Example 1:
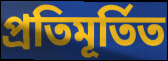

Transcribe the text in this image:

প্ৰতিমূৰ্তিত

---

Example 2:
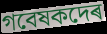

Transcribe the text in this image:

গবেষকদেৰ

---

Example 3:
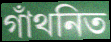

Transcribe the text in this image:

গাঁথনিত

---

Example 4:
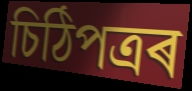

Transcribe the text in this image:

চিঠিপত্ৰৰ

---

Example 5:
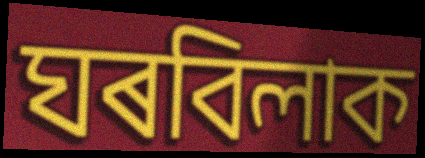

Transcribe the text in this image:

ঘৰবিলাক